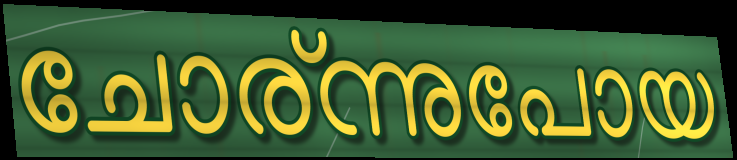
ചോര്ന്നുപോയ